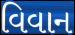
વિવાન